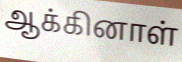
ஆக்கினாள்